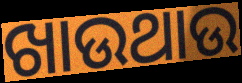
ଖାଉଥାଉ